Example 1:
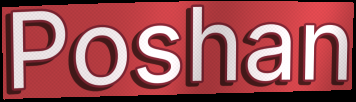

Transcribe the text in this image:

Poshan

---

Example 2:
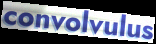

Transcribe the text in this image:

convolvulus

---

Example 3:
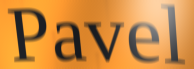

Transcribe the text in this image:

Pavel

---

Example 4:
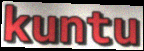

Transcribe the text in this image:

kuntu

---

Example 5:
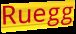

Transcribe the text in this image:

Ruegg